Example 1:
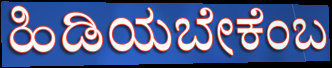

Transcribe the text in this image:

ಹಿಡಿಯಬೇಕೆಂಬ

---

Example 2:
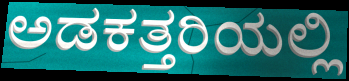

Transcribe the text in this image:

ಅಡಕತ್ತರಿಯಲ್ಲಿ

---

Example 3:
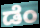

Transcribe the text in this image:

ಡೆಂ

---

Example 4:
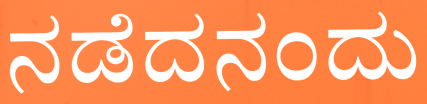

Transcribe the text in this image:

ನಡೆದನಂದು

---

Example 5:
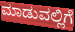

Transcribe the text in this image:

ಮಾಡುವಲ್ಲಿಗೆ